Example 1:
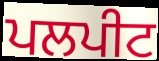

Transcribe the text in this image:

ਪਲਪੀਟ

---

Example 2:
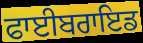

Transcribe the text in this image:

ਫਾਈਬਰਾਇਡ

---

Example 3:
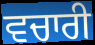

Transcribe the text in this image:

ਵਚਾਰੀ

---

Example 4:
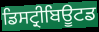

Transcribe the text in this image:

ਡਿਸਟ੍ਰੀਬਿਊਟਡ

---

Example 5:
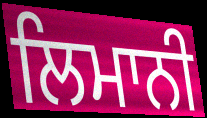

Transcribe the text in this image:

ਲਿਮਾਨੀ